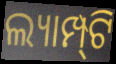
ଲ୍ୟାମ୍ପ୍‍ଟି